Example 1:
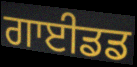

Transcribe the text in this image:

ਗਾਈਡਡ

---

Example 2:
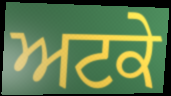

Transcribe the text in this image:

ਅਟਕੇ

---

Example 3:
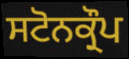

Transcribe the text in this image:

ਸਟੋਨਕ੍ਰੌਪ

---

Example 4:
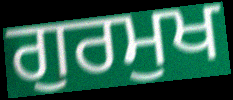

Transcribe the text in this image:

ਗੁਰਮੁਖ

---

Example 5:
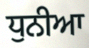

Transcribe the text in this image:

ਧੁਨੀਆ